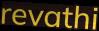
revathi